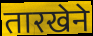
तारखेने